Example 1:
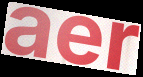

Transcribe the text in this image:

aer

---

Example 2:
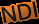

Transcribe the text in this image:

NDI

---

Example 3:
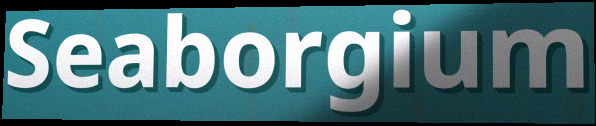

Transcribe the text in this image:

Seaborgium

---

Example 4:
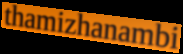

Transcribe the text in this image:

thamizhanambi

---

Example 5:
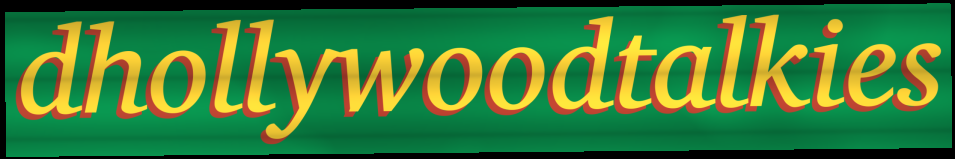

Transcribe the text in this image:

dhollywoodtalkies